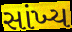
સાંખ્ય